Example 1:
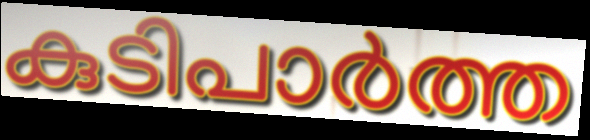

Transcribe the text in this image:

കുടിപാർത്ത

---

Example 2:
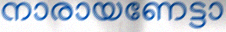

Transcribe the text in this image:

നാരായണേട്ടാ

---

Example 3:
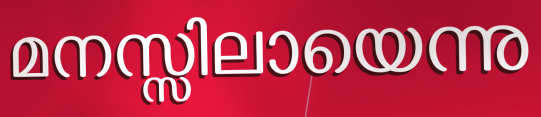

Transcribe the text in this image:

മനസ്സിലായെന്നു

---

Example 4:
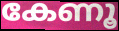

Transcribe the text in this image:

കേണൂ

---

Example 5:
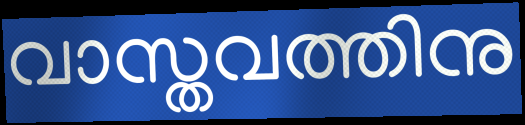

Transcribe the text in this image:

വാസ്തവത്തിനു